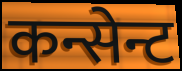
कन्सेन्ट